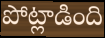
పోట్లాడింది